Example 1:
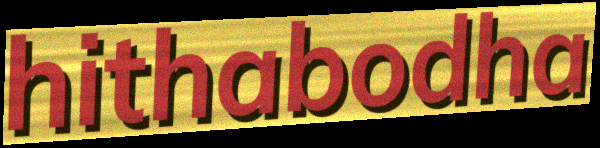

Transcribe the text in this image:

hithabodha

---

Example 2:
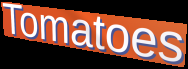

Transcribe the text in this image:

Tomatoes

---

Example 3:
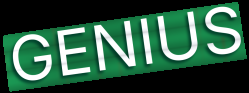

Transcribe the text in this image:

GENIUS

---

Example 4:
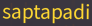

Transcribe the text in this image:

saptapadi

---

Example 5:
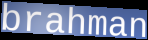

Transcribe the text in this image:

brahman